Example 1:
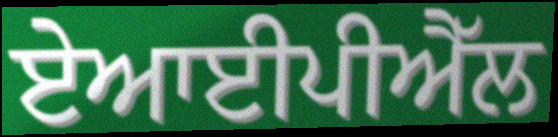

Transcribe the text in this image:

ਏਆਈਪੀਐੱਲ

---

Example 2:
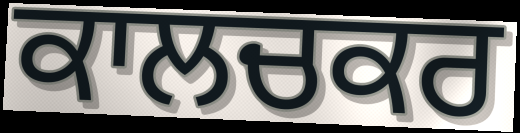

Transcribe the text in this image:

ਕਾਲਚਕਰ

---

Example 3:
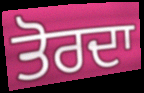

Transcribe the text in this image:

ਤੋਰਦਾ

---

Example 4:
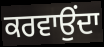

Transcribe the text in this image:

ਕਰਵਾਉਂਦਾ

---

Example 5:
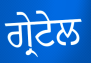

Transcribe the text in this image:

ਗ੍ਰੇਟੇਲ